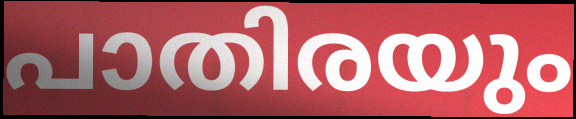
പാതിരയും